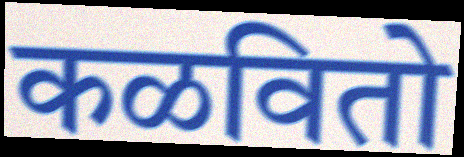
कळवितो